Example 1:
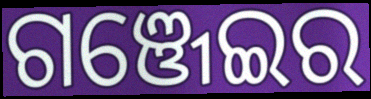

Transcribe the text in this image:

ଗଞ୍ଜେଇର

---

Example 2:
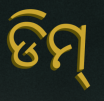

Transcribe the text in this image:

ଡିମ୍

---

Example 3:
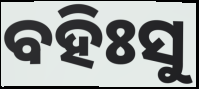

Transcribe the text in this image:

ବହିଃସୁ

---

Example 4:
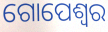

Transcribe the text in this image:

ଗୋପେଶ୍ଵର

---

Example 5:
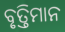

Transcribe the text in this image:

ବୃତ୍ତିମାନ